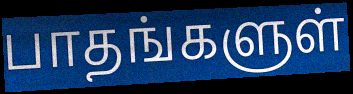
பாதங்களுள்